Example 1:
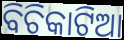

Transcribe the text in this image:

ବିଚିକାଟିଆ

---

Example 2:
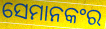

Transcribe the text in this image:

ସେମାନକଂର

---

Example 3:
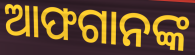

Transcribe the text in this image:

ଆଫଗାନଙ୍କ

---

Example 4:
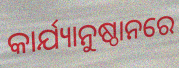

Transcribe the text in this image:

କାର୍ଯ୍ୟାନୁଷ୍ଠାନରେ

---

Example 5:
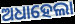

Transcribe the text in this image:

ଅଧାହେଲା